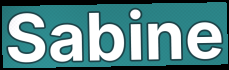
Sabine